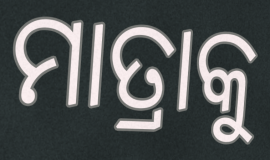
ମାତ୍ରାକୁ